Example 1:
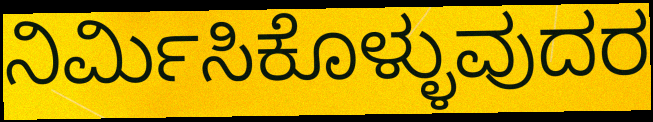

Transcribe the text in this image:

ನಿರ್ಮಿಸಿಕೊಳ್ಳುವುದರ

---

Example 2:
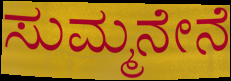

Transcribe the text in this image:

ಸುಮ್ಮನೇನೆ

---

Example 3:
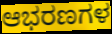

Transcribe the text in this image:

ಆಭರಣಗಳ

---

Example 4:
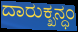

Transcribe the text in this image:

ದಾರುಕ್ಖನ್ಧಂ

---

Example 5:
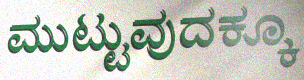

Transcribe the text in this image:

ಮುಟ್ಟುವುದಕ್ಕೂ